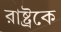
রাষ্ট্রকে